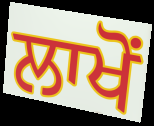
ਲਾਖੋਂ